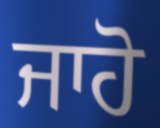
ਜਾਹੋ